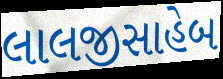
લાલજીસાહેબ